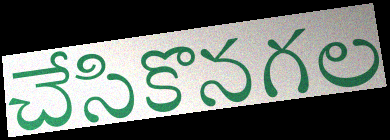
చేసికొనగల